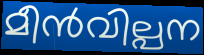
മീൻവില്പന